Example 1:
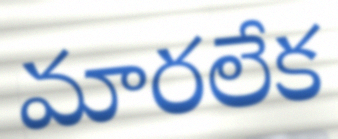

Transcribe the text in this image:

మారలేక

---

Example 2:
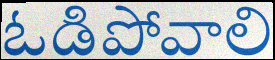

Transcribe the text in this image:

ఓడిపోవాలి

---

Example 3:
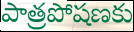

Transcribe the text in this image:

పాత్రపోషణకు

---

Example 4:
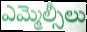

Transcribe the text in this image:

ఎమ్మెల్సీలు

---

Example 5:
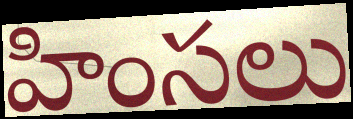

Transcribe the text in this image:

హింసలు